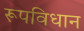
रूपविधान